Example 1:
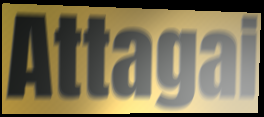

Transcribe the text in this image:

Attagai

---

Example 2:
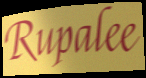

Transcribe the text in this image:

Rupalee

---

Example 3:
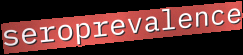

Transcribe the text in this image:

seroprevalence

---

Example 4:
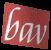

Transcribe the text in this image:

bav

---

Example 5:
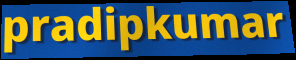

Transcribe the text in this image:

pradipkumar